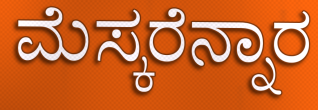
ಮೆಸ್ಕರೆನ್ನಾರ